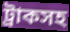
ট্রাকসহ